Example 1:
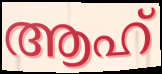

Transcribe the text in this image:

ആഹ്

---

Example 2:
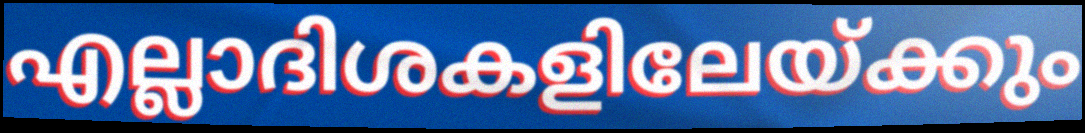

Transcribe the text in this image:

എല്ലാദിശകളിലേയ്ക്കും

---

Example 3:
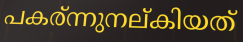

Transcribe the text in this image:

പകര്ന്നുനല്കിയത്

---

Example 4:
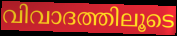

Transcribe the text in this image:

വിവാദത്തിലൂടെ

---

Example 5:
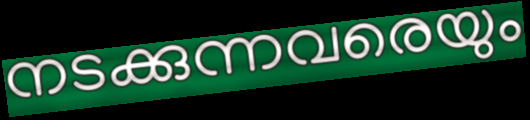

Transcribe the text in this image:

നടക്കുന്നവരെയും